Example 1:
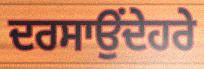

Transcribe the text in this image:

ਦਰਸਾਉਂਦੇਹਰੇ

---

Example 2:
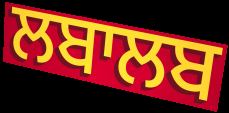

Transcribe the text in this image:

ਲਬਾਲਬ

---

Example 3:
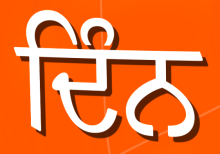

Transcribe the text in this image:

ਦਿੰਨ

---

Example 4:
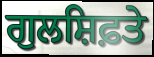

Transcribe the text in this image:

ਗੁਲਸ਼ਿਫ਼ਤੇ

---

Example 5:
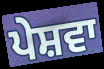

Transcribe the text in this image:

ਪੇਸ਼ਵਾ